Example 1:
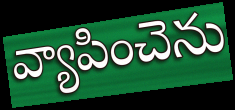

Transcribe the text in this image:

వ్యాపించెను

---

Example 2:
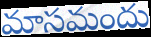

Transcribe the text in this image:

మాసమందు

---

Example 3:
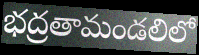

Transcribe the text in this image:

భద్రతామండలిలో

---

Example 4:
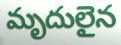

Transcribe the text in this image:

మృదులైన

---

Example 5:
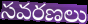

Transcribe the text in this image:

సవరణలు